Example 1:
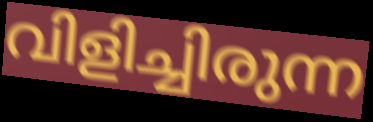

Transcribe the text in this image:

വിളിച്ചിരുന്ന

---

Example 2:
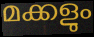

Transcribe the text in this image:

മക്കളും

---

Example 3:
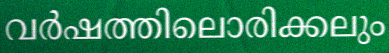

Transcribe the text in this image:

വർഷത്തിലൊരിക്കലും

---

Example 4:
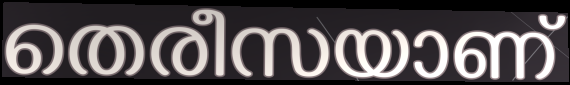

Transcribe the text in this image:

തെരീസയാണ്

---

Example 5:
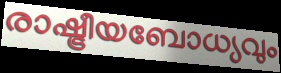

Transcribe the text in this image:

രാഷ്ട്രീയബോധ്യവും